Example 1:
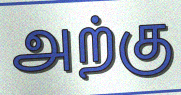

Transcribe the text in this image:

அற்கு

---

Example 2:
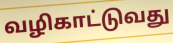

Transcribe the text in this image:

வழிகாட்டுவது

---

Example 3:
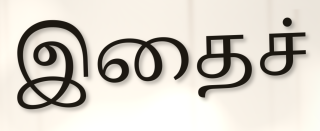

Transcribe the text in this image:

இதைச்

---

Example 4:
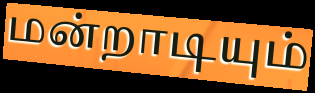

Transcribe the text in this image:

மன்றாடியும்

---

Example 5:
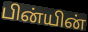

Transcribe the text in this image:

பின்யின்